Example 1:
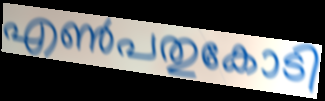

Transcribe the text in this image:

എൺപതുകോടി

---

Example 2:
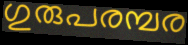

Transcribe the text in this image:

ഗുരുപരമ്പര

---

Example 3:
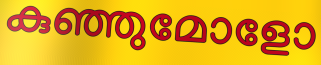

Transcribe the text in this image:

കുഞ്ഞുമോളോ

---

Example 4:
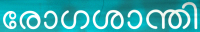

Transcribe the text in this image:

രോഗശാന്തി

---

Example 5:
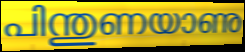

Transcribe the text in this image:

പിന്തുണയാണു